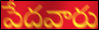
పేదవారు